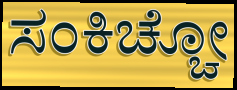
ಸಂಕಿಚ್ಚೋ